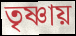
তৃষ্ণায়